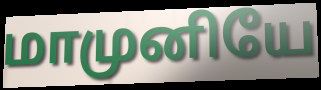
மாமுனியே